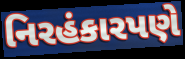
નિરહંકારપણે